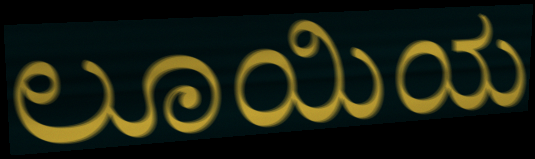
ಲೂಯಿಯ